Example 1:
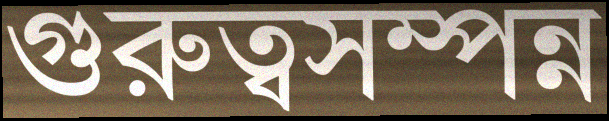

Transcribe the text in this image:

গুরুত্বসম্পন্ন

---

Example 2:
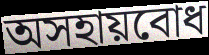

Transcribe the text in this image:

অসহায়বোধ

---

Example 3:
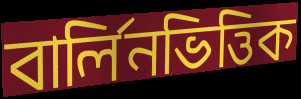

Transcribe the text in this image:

বার্লিনভিত্তিক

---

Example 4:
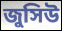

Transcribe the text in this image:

জুসিউ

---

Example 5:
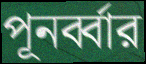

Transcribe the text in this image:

পূনর্ব্বার